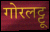
गोरलट्टू